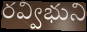
రవ్విభుని